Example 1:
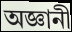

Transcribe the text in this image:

অজ্ঞানী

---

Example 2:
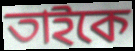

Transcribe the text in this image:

তাইকে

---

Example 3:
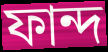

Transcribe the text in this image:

ফান্দ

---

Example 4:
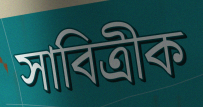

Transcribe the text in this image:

সাবিত্ৰীক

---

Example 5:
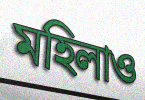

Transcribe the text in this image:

মহিলাও